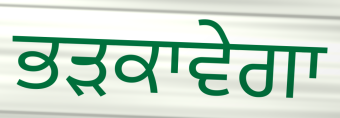
ਭੜਕਾਵੇਗਾ